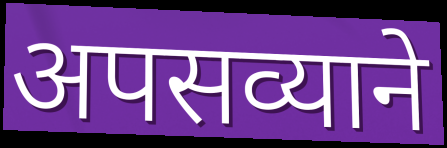
अपसव्याने